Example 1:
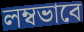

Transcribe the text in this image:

লম্বভাবে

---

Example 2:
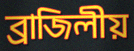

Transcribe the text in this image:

ব্রাজিলীয়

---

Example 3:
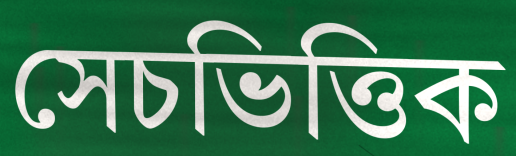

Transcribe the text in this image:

সেচভিত্তিক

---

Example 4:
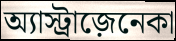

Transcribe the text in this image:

অ্যাস্ট্রাজ়েনেকা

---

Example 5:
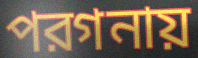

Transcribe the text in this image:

পরগনায়